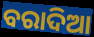
ବରାଦିଆ